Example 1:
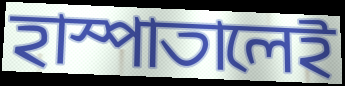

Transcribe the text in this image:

হাস্পাতালেই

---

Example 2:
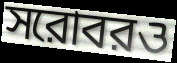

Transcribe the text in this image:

সরোবরও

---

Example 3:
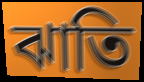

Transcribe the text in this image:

ঝাতি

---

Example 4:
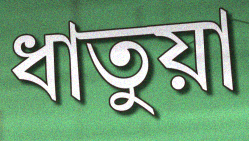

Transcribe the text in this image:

ধাতুয়া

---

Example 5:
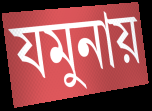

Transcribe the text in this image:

যমুনায়